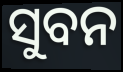
ସୁବନ